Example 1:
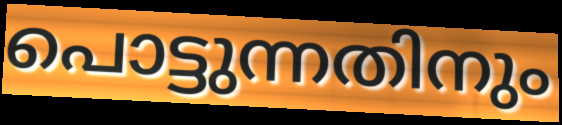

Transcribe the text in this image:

പൊട്ടുന്നതിനും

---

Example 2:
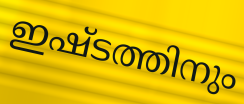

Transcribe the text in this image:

ഇഷ്ടത്തിനും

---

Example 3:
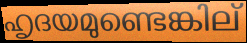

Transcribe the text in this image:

ഹൃദയമുണ്ടെങ്കില്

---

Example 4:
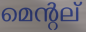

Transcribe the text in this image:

മെന്റല്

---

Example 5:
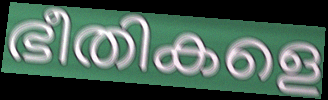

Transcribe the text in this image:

ഭീതികളെ